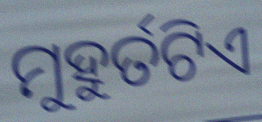
ମୁହୁର୍ତଟିଏ